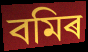
বমিৰ